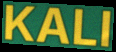
KALI